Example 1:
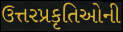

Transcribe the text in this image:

ઉત્તરપ્રકૃતિઓની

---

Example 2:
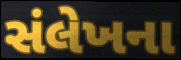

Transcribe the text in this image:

સંલેખના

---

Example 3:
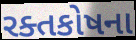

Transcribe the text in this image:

રક્તકોષના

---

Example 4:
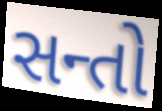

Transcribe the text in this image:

સન્તો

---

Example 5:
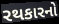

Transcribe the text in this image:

રથકારનો